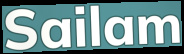
Sailam